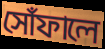
সোঁফালে